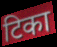
टिका